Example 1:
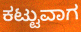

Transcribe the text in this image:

ಕಟ್ಟುವಾಗ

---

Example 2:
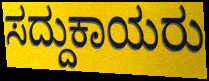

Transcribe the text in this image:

ಸದ್ದುಕಾಯರು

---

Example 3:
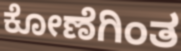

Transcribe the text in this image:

ಕೋಣೆಗಿಂತ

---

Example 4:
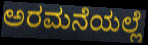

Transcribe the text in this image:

ಅರಮನೆಯಲ್ಲೆ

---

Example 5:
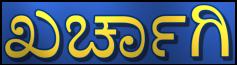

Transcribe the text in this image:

ಖರ್ಚಾಗಿ